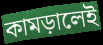
কামড়ালেই